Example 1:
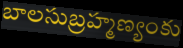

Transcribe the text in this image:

బాలసుబ్రహ్మణ్యంకు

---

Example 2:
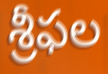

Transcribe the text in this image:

శ్రీఫల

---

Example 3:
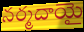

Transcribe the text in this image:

నర్మదాయై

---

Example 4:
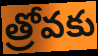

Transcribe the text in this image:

త్రోవకు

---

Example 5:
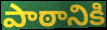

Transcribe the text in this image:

పాఠానికి